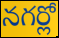
నగర్లో